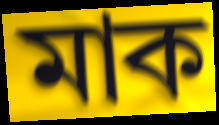
মাক